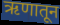
ऋणातून